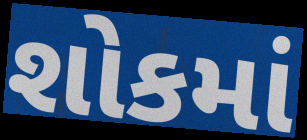
શોકમાં